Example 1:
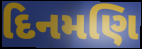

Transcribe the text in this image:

દિનમણિ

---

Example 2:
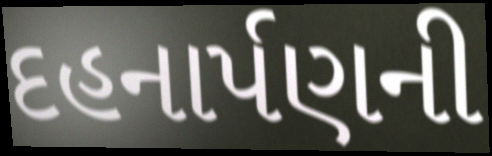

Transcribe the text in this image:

દહનાર્પણની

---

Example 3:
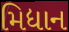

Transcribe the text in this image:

મિદ્યાન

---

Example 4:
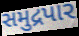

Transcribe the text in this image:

સમુદ્રપાર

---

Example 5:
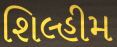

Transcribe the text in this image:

શિલ્હીમ